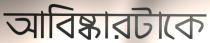
আবিষ্কারটাকে